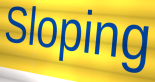
Sloping